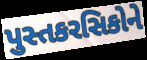
પુસ્તકરસિકોને